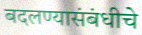
बदलण्यासंबंधीचे